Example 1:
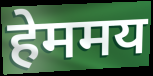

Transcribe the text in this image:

हेममय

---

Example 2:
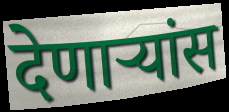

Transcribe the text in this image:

देणाऱ्यांस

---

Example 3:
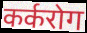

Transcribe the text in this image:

कर्करोग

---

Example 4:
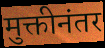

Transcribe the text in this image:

मुक्तीनंतर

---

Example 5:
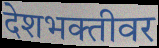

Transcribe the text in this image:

देशभक्तीवर